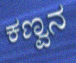
ಕಣ್ವನ